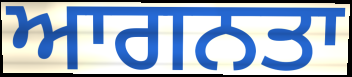
ਆਗਨਤਾ